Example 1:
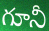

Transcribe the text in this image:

గూనీ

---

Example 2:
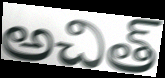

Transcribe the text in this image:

అచిత్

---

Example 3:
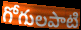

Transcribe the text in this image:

గోగులపాటి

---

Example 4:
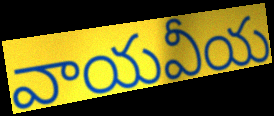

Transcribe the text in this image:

వాయవీయ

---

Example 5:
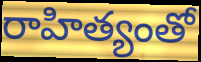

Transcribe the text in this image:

రాహిత్యంతో